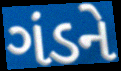
ગંડને